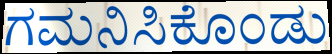
ಗಮನಿಸಿಕೊಂಡು